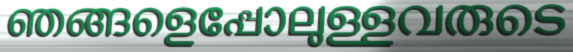
ഞങ്ങളെപ്പോലുള്ളവരുടെ